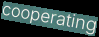
cooperating